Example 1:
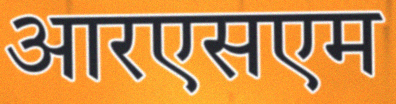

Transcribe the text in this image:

आरएसएम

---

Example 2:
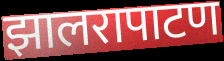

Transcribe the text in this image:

झालरापाटण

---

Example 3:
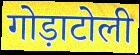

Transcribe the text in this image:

गोड़ाटोली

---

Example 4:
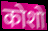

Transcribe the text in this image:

कोशो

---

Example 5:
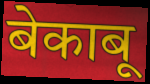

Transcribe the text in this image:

बेकाबू